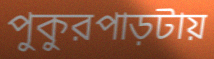
পুকুরপাড়টায়